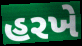
હરખે